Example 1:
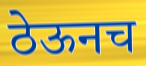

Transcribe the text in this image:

ठेऊनच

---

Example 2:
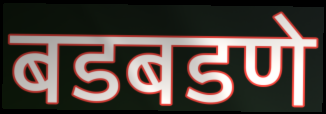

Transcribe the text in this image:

बडबडणे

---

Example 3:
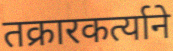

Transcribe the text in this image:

तक्रारकर्त्याने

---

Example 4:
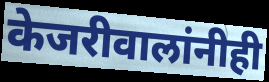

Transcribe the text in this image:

केजरीवालांनीही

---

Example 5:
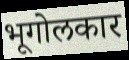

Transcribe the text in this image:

भूगोलकार